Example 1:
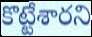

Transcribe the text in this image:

కొట్టేశారని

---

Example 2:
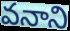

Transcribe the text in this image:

వనాని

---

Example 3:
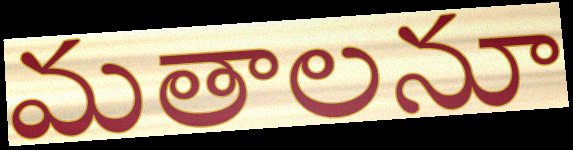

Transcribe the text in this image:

మతాలనూ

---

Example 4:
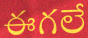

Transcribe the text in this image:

ఈగలే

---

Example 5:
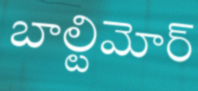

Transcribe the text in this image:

బాల్టిమోర్